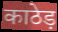
काठेड़